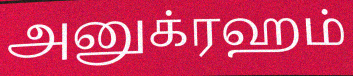
அனுக்ரஹம்